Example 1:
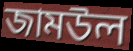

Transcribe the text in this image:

জামউল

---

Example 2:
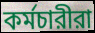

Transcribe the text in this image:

কর্মচারীরা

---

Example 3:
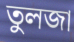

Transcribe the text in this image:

তুলজা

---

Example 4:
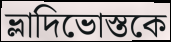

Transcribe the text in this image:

ভ্লাদিভোস্তকে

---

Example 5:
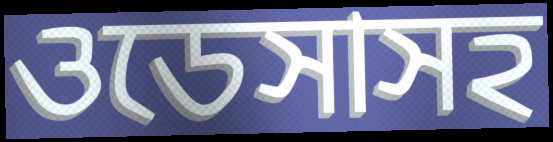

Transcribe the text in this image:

ওডেসাসহ